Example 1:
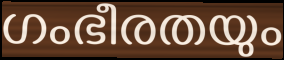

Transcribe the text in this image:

ഗംഭീരതയും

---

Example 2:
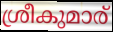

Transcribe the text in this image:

ശ്രീകുമാര്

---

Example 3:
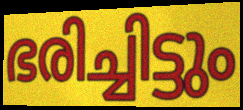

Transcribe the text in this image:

ഭരിച്ചിട്ടും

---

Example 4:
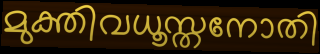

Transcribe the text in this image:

മുക്തിവധൂസ്തനോതി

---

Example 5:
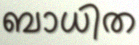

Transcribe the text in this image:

ബാധിത